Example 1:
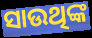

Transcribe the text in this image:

ସାଉଥିଙ୍କ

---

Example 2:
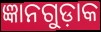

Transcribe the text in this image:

ଜ୍ଞାନଗୁଡ଼ାକ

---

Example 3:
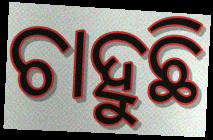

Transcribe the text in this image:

ଚାହୁଛି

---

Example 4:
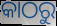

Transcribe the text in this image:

କାଠରୁ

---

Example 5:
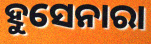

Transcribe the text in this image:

ହୁସେନାରା